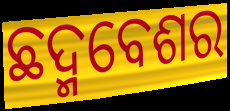
ଛଦ୍ମବେଶର